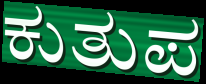
ಕುತುಪ